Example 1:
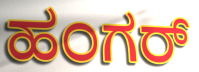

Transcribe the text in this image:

ಹಂಗರ್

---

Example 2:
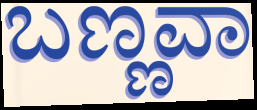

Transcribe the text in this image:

ಬಣ್ಣವಾ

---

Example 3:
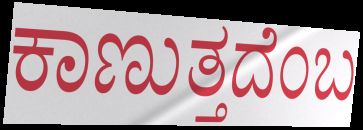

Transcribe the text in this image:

ಕಾಣುತ್ತದೆಂಬ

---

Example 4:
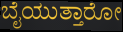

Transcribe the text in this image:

ಬೈಯುತ್ತಾರೋ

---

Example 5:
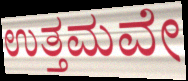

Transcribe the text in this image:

ಉತ್ತಮವೇ